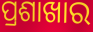
ପ୍ରଶାଖାର